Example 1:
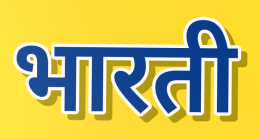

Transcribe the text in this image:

भारती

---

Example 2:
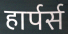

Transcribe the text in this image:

हार्पर्स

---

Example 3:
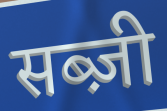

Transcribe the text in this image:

सब्ज़ी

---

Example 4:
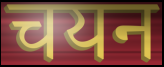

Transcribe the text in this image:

चयन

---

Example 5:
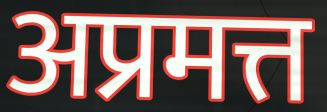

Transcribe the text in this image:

अप्रमत्त